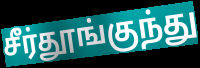
சீர்தூங்குந்து